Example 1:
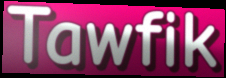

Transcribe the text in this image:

Tawfik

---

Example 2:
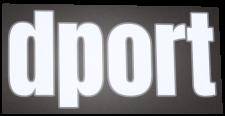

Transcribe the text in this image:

dport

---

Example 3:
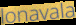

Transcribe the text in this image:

lonavala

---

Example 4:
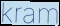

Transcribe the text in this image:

kram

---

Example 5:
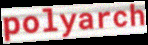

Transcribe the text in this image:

polyarch